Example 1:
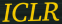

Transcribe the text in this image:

ICLR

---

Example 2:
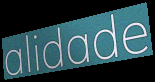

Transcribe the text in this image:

alidade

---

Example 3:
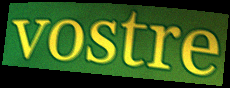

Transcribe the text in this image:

vostre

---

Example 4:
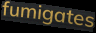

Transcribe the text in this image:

fumigates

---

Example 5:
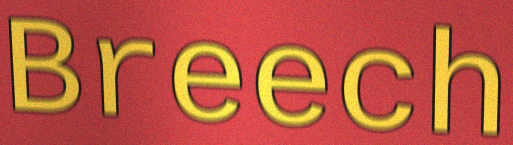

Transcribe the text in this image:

Breech